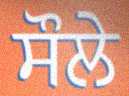
ਸੌਲੇ